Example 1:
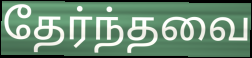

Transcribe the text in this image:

தேர்ந்தவை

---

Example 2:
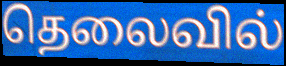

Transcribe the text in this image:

தெலைவில்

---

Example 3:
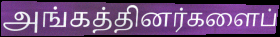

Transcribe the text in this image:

அங்கத்தினர்களைப்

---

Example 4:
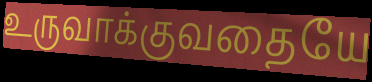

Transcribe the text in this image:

உருவாக்குவதையே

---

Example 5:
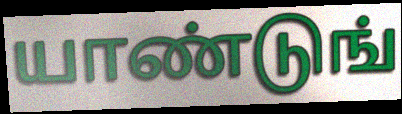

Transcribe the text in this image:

யாண்டுங்